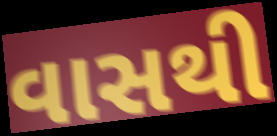
વાસથી